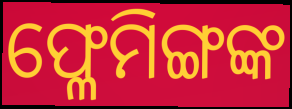
ଫ୍ଳେମିଙ୍ଗଙ୍କ